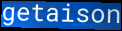
getaison